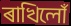
ৰাখিলোঁ